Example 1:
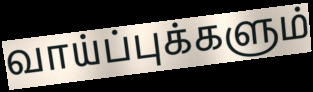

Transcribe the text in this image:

வாய்ப்புக்களும்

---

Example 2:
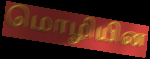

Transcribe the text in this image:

மொழியின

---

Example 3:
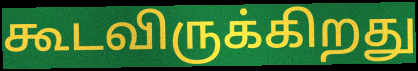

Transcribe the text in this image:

கூடவிருக்கிறது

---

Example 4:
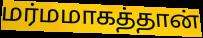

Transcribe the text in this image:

மர்மமாகத்தான்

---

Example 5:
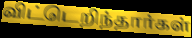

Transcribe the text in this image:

விட்டெறிந்தார்கள்